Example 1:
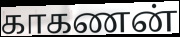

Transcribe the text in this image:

காகணன்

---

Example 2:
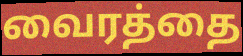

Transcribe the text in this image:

வைரத்தை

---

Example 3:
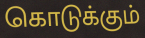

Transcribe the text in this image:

கொடுக்கும்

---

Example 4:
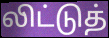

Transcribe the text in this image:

லிட்டுத்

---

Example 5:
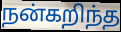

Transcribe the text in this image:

நன்கறிந்த